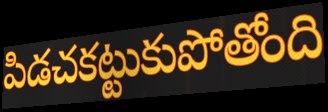
పిడచకట్టుకుపోతోంది